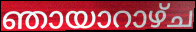
ഞായാറാഴ്ച